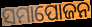
ସମାପୋଜନ